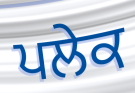
ਪਲੇਕ